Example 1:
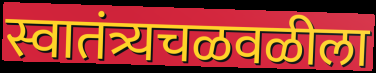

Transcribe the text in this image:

स्वातंत्र्यचळवळीला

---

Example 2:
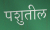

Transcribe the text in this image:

पशुतील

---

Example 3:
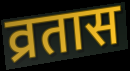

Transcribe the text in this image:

व्रतास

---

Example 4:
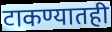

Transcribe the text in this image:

टाकण्यातही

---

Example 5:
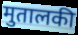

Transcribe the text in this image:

मुतालकी